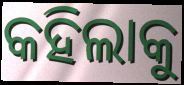
କହିଲାକୁ